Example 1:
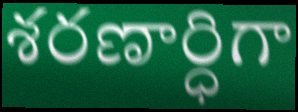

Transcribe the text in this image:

శరణార్ధిగా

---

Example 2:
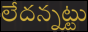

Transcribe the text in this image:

లేదన్నట్టు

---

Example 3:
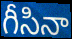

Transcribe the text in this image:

గీసినా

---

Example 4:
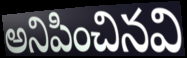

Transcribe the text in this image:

అనిపించినవి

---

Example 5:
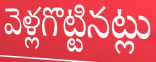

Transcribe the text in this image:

వెళ్లగొట్టినట్లు